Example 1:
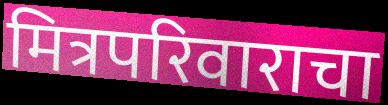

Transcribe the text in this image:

मित्रपरिवाराचा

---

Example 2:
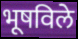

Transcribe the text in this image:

भूषविले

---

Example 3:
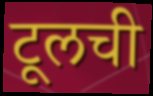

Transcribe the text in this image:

टूलची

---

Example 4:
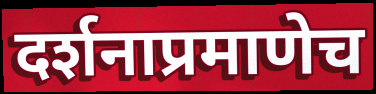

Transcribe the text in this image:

दर्शनाप्रमाणेच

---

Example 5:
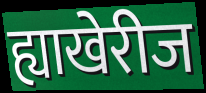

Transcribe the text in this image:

ह्याखेरीज